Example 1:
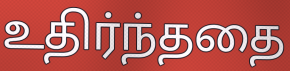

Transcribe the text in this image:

உதிர்ந்ததை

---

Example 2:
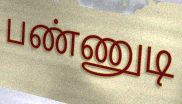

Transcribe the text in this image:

பண்ணுடி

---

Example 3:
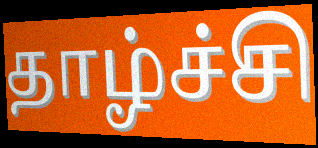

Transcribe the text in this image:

தாழ்ச்சி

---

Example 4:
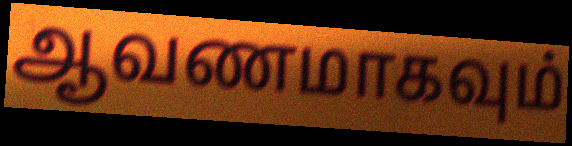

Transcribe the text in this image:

ஆவணமாகவும்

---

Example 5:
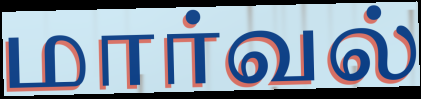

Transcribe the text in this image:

மார்வல்